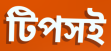
টিপসই